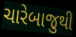
ચારેબાજુથી